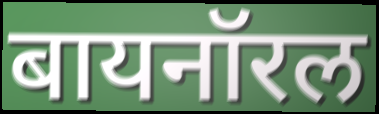
बायनॉरल